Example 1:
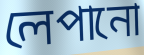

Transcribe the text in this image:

লেপানো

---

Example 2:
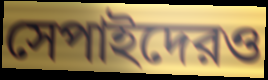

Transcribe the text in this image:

সেপাইদেরও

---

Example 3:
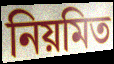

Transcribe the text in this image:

নিয়মিত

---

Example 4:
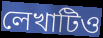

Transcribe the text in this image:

লেখাটিও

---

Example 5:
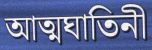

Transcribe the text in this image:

আত্মঘাতিনী